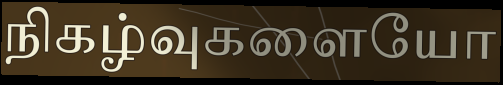
நிகழ்வுகளையோ